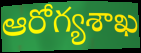
ఆరోగ్యశాఖ